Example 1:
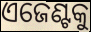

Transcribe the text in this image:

ଏଜେଣ୍ଟକୁ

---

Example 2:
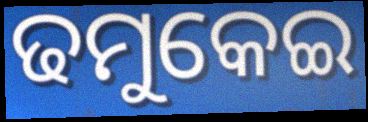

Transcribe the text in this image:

ଢମୁକେଇ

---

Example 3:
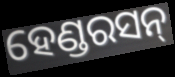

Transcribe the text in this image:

ହେଣ୍ଡରସନ୍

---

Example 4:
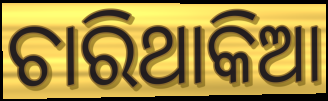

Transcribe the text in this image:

ଚାରିଥାକିଆ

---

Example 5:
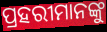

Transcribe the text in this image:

ପ୍ରହରୀମାନଙ୍କୁ